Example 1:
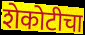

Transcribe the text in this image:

शेकोटीचा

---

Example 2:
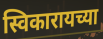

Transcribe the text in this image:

स्विकारायच्या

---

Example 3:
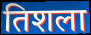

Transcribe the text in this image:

तिशला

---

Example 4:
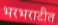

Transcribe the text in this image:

भरभराटीत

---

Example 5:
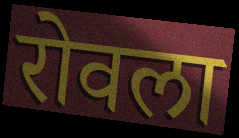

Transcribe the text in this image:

रोवला